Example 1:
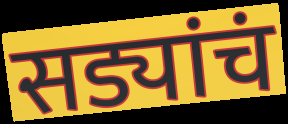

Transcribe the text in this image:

सड्यांचं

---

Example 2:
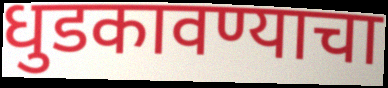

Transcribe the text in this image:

धुडकावण्याचा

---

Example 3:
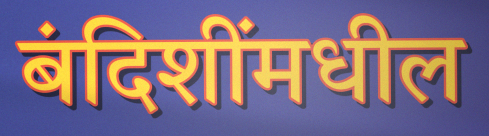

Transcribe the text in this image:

बंदिशींमधील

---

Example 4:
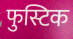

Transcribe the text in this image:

फुस्टिक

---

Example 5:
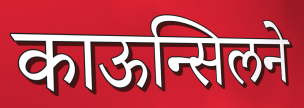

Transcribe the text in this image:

काऊन्सिलने